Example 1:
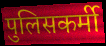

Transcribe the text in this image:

पुलिसकर्मी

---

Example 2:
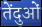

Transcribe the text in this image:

तेंदुओं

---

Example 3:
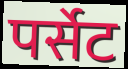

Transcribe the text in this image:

पर्सेट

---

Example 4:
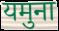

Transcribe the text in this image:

यमुना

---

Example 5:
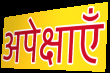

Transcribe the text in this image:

अपेक्षाएँ